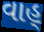
વાહ્